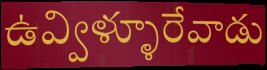
ఉవ్విళ్ళూరేవాడు